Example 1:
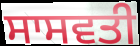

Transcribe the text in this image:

ਸਾਸਵਤੀ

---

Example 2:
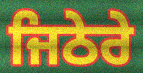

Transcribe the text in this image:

ਜਿਠੇਰੇ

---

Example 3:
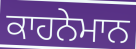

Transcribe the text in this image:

ਕਾਹਨੇਮਾਨ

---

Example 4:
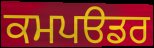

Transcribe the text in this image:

ਕਮਪੳਡਰ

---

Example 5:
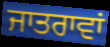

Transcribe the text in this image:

ਜਾਤਰਾਵਾਂ